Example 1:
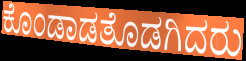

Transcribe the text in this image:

ಕೊಂಡಾಡತೊಡಗಿದರು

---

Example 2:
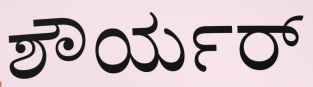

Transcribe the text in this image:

ಶೌರ್ಯರ್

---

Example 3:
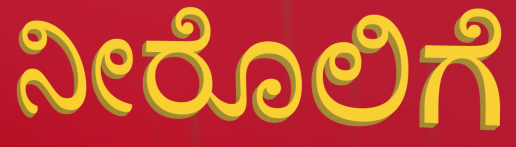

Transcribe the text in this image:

ನೀರೊಲಿಗೆ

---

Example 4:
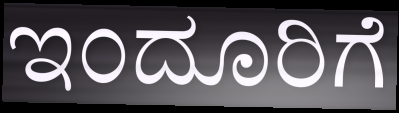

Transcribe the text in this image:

ಇಂದೂರಿಗೆ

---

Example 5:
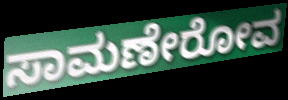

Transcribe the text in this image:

ಸಾಮಣೇರೋವ